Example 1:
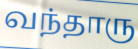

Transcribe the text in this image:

வந்தாரு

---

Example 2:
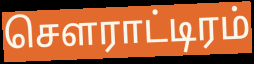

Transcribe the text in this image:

சௌராட்டிரம்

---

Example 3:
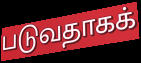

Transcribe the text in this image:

படுவதாகக்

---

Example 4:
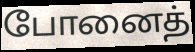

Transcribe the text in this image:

போனைத்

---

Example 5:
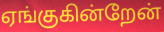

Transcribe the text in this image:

ஏங்குகின்றேன்